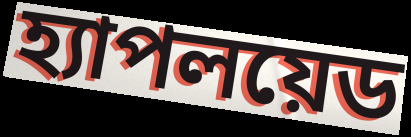
হ্যাপলয়েড